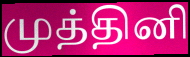
முத்தினி